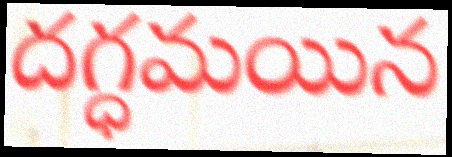
దగ్ధమయిన